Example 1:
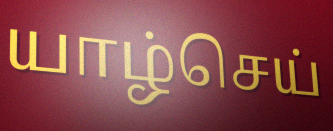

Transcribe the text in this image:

யாழ்செய்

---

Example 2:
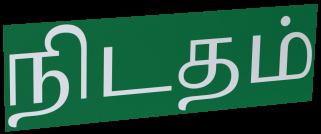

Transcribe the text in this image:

நிடதம்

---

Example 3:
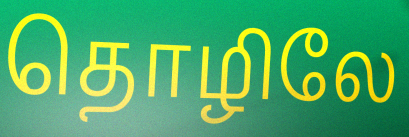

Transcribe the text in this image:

தொழிலே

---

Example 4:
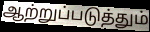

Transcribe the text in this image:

ஆற்றுப்படுத்தும்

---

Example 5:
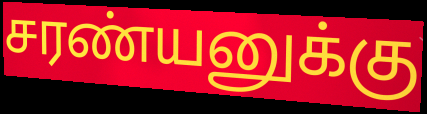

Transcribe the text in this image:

சரண்யனுக்கு